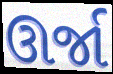
ઊર્જા